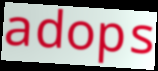
adops